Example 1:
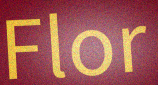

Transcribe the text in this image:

Flor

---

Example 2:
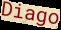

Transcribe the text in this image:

Diago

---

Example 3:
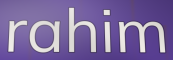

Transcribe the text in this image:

rahim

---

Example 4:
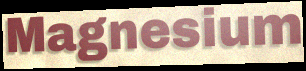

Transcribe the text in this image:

Magnesium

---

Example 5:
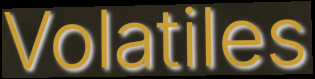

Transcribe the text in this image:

Volatiles